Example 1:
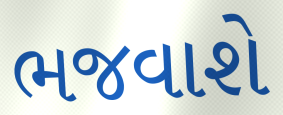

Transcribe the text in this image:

ભજવાશે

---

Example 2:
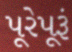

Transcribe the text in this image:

પૂરેપૂરૂં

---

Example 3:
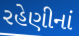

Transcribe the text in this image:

રહેણીનાં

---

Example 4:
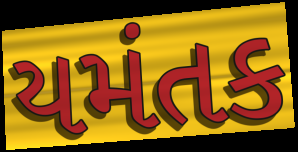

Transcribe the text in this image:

યમંતક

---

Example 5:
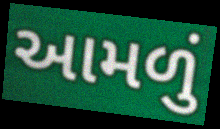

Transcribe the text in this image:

આમળું